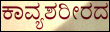
ಕಾವ್ಯಶರೀರದ